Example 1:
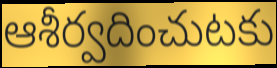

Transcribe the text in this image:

ఆశీర్వదించుటకు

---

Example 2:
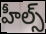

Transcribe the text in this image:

హీల్స్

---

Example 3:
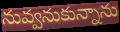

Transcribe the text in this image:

నువ్వనుకున్నాను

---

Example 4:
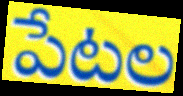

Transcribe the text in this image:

పేటల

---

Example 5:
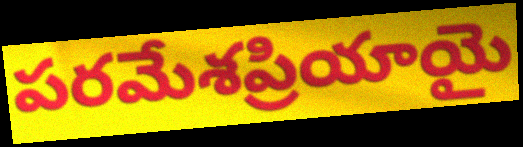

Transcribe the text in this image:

పరమేశప్రియాయై